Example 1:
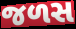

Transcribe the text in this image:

જળસ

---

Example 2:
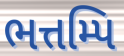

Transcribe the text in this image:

ભત્તમ્પિ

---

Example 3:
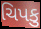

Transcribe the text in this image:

ચિપકુ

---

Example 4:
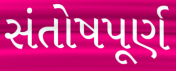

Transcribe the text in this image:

સંતોષપૂર્ણ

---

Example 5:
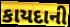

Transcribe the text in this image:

કાયદાની